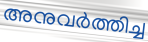
അനുവർത്തിച്ച